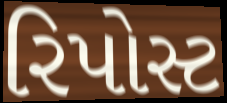
રિપોસ્ટ